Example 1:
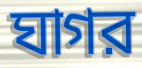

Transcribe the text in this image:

ঘাগর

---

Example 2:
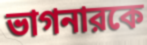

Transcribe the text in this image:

ভাগনারকে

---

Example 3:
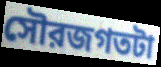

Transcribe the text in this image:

সৌরজগতটা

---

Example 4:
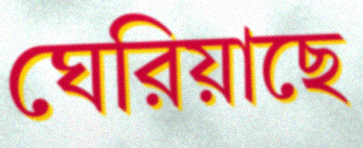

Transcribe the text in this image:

ঘেরিয়াছে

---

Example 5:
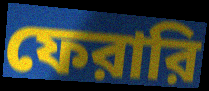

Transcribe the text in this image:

ফেরারি